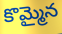
కొమ్మైన